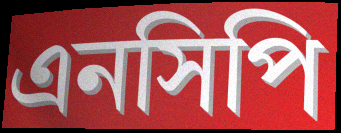
এনসিপি